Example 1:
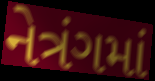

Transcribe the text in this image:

નેત્રંગમાં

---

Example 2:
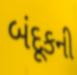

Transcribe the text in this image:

બંદૂકની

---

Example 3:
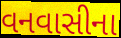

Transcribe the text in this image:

વનવાસીના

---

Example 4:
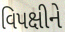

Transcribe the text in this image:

વિપક્ષીને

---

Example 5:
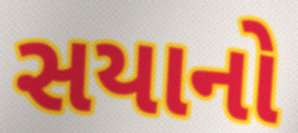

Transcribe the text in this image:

સયાનો